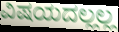
ವಿಷಯದಲ್ಲಲ್ಲ